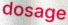
dosage